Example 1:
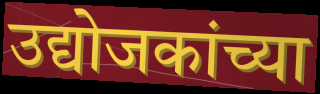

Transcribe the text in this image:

उद्योजकांच्या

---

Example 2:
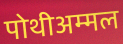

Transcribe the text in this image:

पोथीअम्मल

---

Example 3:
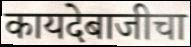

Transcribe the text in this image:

कायदेबाजीचा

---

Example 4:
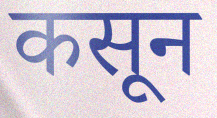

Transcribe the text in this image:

कसून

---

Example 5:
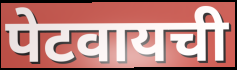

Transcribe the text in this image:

पेटवायची